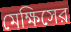
মেক্ষিসের